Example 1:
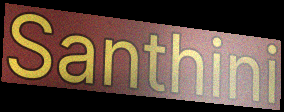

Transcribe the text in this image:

Santhini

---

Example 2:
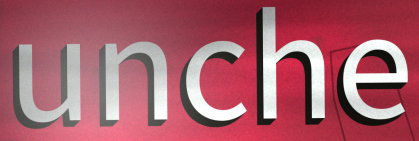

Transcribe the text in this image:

unche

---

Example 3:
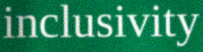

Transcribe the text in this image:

inclusivity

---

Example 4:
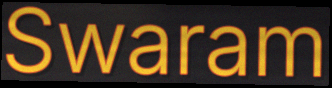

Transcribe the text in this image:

Swaram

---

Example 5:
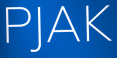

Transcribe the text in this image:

PJAK